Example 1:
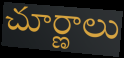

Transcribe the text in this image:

చూర్ణాలు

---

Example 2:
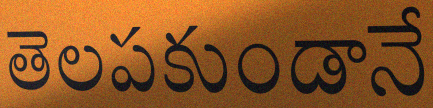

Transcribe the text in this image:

తెలపకుండానే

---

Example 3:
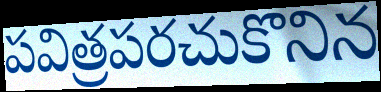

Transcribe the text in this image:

పవిత్రపరచుకొనిన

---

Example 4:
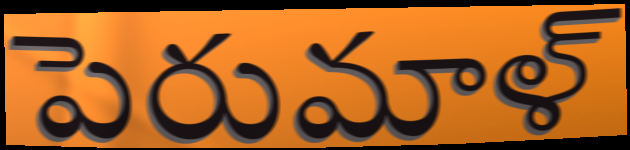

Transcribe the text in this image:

పెరుమాళ్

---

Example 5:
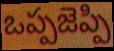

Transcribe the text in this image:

ఒప్పజెప్పి